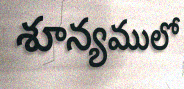
శూన్యములో